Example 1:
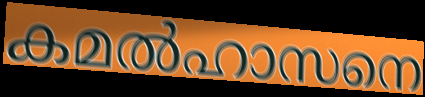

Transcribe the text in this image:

കമൽഹാസനെ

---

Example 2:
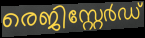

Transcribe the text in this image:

രെജിസ്റ്റേർഡ്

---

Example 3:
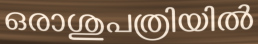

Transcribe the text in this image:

ഒരാശുപത്രിയിൽ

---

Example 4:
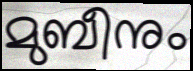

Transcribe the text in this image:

മുബീനും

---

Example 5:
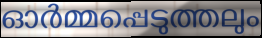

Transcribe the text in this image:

ഓർമ്മപ്പെടുത്തലും